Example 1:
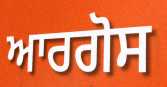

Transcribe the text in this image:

ਆਰਗੋਸ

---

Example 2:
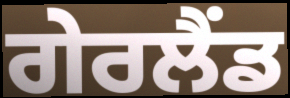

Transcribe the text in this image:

ਗੇਰਲੈਂਡ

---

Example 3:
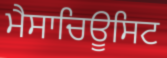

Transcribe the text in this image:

ਮੈਸਾਚਿਊਸਿਟ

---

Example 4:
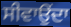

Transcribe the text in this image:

ਸੀਵਾਉਂਦਾ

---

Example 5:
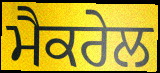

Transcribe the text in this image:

ਮੈਕਰੇਲ